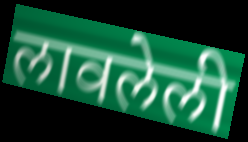
लावलेली